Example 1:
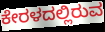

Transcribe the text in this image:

ಕೇರಳದಲ್ಲಿರುವ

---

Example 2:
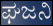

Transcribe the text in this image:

ಘಜನಿ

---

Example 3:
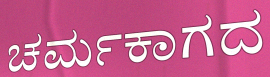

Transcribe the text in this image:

ಚರ್ಮಕಾಗದ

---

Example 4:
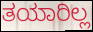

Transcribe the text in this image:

ತಯಾರಿಲ್ಲ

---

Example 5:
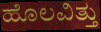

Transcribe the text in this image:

ಹೊಲವಿತ್ತು